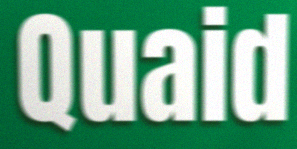
Quaid